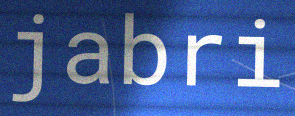
jabri